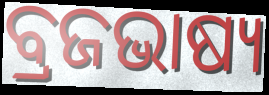
ବ୍ରଜଭାଷ୍ୟ